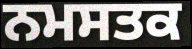
ਨਮਸਤਕ